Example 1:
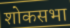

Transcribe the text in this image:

शोकसभा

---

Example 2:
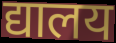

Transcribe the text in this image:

द्यालय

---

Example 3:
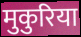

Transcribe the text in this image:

मुकुरिया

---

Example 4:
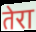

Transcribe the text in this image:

तेरा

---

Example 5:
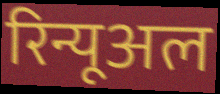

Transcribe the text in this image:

रिन्यूअल